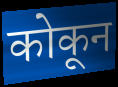
कोकून